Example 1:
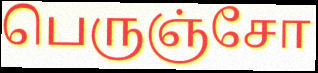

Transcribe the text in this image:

பெருஞ்சோ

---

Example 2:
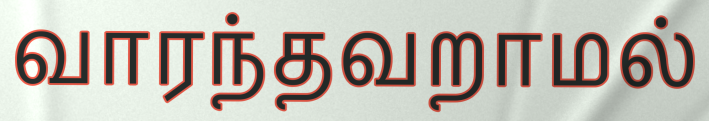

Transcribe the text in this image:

வாரந்தவறாமல்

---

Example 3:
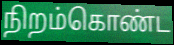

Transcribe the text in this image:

நிறம்கொண்ட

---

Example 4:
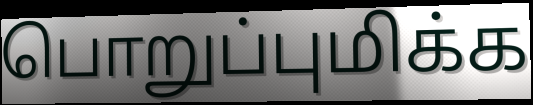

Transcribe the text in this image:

பொறுப்புமிக்க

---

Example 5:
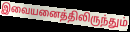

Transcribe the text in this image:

இவையனைத்திலிருந்தும்